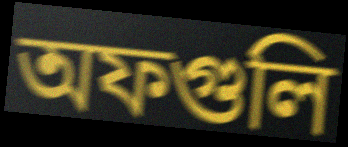
অফগুলি